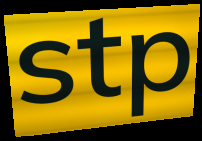
stp